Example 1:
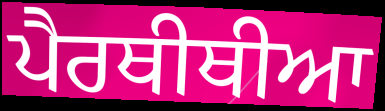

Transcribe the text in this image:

ਪੈਰਥੀਥੀਆ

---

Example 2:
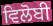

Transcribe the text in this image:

ਵਿਲੋਬੀ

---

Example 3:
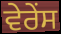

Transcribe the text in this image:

ਵੇਰੇਂਸ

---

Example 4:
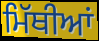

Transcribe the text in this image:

ਮਿੱਥੀਆਂ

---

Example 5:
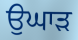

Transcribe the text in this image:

ਉਘਾੜ